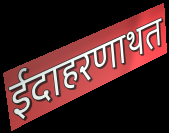
ईदाहरणाथत